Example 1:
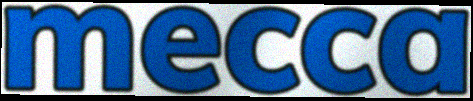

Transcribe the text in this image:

mecca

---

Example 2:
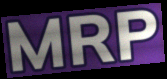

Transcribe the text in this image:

MRP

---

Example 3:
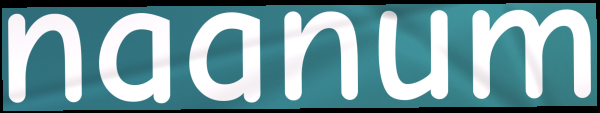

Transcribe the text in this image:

naanum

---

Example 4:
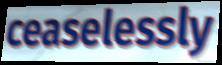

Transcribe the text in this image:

ceaselessly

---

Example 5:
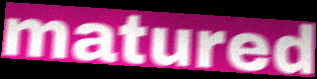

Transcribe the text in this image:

matured